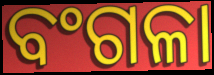
ବଂଗଳା